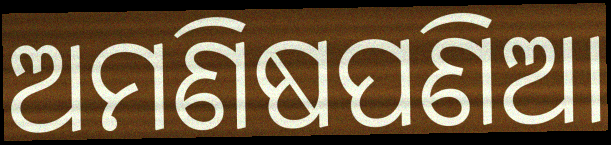
ଅମଣିଷପଣିଆ